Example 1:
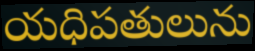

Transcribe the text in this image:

యధిపతులును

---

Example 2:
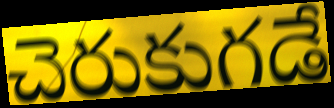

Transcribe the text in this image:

చెరుకుగడే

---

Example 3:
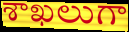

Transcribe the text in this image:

శాఖలుగా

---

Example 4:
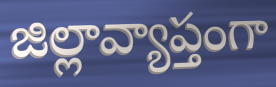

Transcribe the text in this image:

జిల్లావ్యాప్తంగా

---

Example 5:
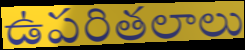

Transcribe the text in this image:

ఉపరితలాలు